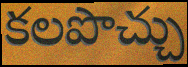
కలపొచ్చు